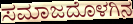
ಸಮಾಜದೊಳಗಿನ